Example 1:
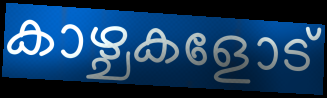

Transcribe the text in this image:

കാഴ്ചകളോട്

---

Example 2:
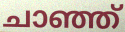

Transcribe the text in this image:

ചാഞ്ഞ്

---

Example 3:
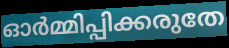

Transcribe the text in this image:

ഓർമ്മിപ്പിക്കരുതേ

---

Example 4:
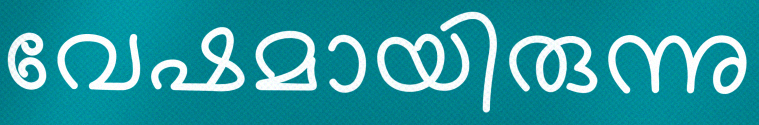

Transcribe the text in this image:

വേഷമായിരുന്നു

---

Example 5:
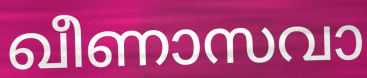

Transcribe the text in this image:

ഖീണാസവാ